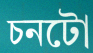
চনটো